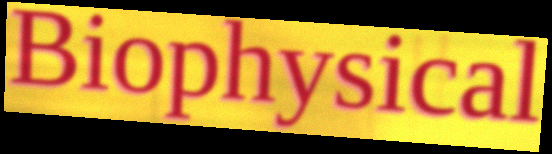
Biophysical